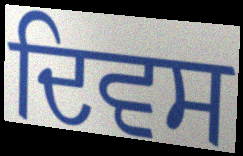
ਦਿਵਸ